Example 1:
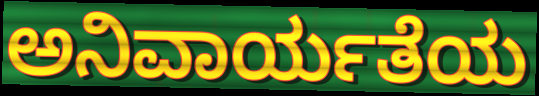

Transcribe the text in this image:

ಅನಿವಾರ್ಯತೆಯ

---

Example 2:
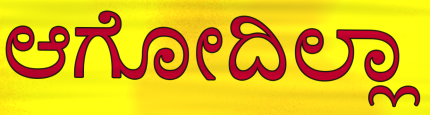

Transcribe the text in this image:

ಆಗೋದಿಲ್ಲಾ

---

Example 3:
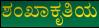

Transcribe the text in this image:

ಶಂಖಾಕೃತಿಯ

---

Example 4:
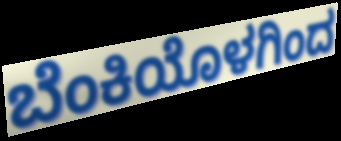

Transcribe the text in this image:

ಬೆಂಕಿಯೊಳಗಿಂದ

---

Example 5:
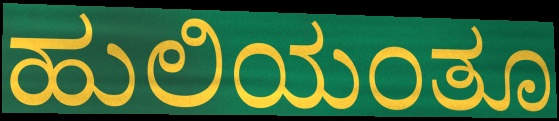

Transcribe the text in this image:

ಹುಲಿಯಂತೂ